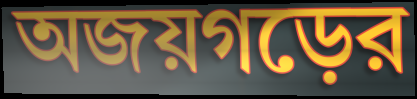
অজয়গড়ের